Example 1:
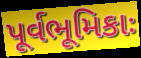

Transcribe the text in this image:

પૂર્વભૂમિકાઃ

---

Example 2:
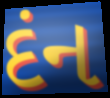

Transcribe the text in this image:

દંન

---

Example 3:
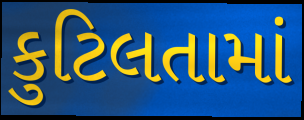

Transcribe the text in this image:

કુટિલતામાં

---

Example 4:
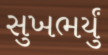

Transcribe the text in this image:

સુખભર્યું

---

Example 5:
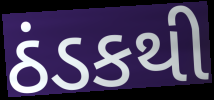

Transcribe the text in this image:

ઠંડકથી